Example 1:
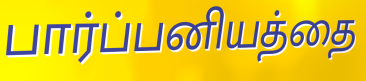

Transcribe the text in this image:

பார்ப்பனியத்தை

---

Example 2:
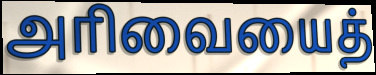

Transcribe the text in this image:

அரிவையைத்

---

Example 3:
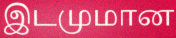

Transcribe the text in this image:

இடமுமான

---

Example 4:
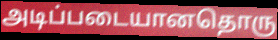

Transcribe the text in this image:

அடிப்படையானதொரு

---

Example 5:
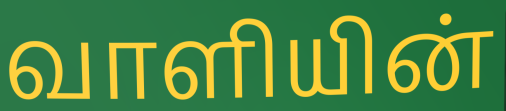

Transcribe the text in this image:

வாளியின்